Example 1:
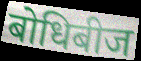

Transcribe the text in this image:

बोधिबीज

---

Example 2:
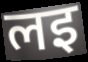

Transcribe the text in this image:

लइ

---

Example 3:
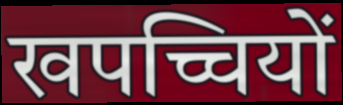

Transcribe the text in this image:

खपच्चियों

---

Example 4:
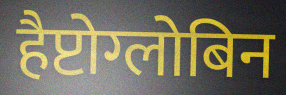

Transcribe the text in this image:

हैप्टोग्लोबिन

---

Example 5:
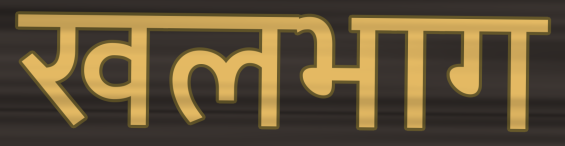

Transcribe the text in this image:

खलभाग